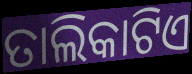
ତାଲିକାଟିଏ